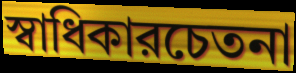
স্বাধিকারচেতনা